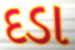
દડા